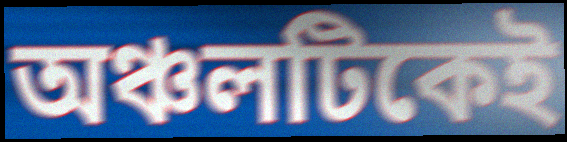
অঞ্চলটিকেই